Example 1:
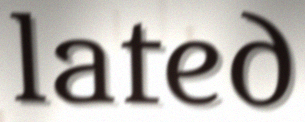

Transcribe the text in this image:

lated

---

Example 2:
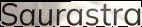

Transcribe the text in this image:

Saurastra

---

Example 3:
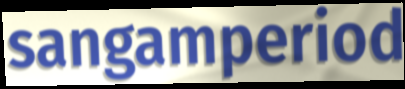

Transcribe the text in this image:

sangamperiod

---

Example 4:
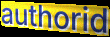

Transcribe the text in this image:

authorid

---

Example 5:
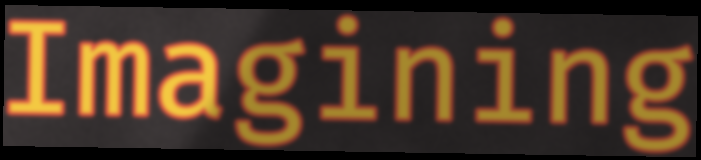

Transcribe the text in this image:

Imagining